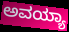
ಅವಯ್ಯಾ